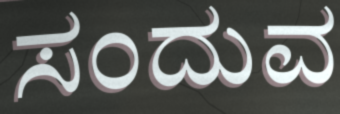
ಸಂದುವ